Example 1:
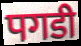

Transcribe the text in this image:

पगडी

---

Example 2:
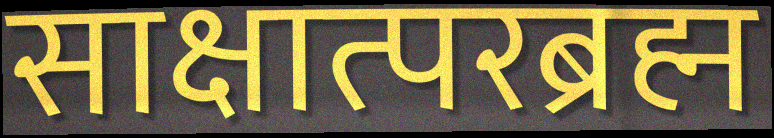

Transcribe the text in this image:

साक्षात्परब्रह्म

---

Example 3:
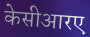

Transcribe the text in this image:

केसीआरए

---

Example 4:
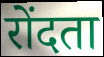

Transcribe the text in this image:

रोंदता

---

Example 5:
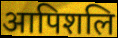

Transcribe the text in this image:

आपिशलि